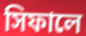
সিফালে